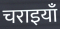
चराइयाँ